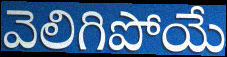
వెలిగిపోయే